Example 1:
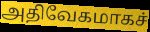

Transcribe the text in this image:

அதிவேகமாகச்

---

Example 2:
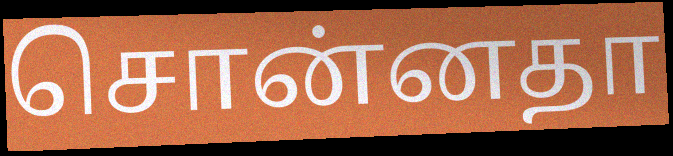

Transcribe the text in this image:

சொன்னதா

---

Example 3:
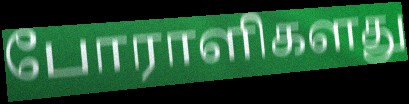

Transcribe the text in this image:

போராளிகளது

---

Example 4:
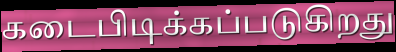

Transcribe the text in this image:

கடைபிடிக்கப்படுகிறது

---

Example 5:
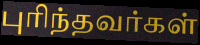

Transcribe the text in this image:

புரிந்தவர்கள்